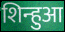
शिन्‍हुआ